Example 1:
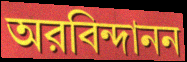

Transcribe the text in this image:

অরবিন্দানন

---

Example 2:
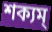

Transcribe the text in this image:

শক্যম্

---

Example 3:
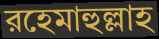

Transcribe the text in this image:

রহেমাহুল্লাহ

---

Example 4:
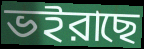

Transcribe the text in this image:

ভইরাছে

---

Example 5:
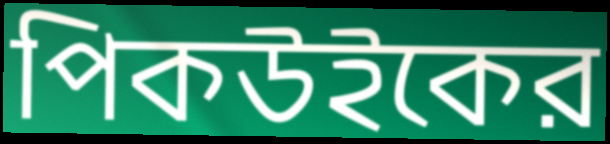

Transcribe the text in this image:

পিকউইকের